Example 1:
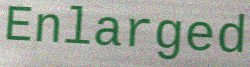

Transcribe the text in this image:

Enlarged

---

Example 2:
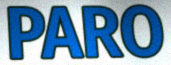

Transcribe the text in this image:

PARO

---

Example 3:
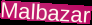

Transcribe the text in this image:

Malbazar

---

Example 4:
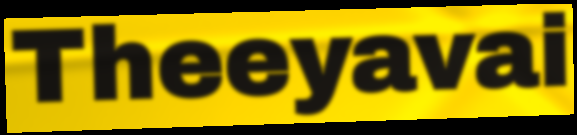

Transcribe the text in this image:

Theeyavai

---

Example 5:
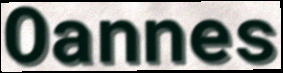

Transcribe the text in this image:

Oannes